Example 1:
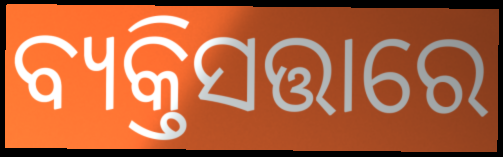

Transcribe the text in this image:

ବ୍ୟକ୍ତିସତ୍ତାରେ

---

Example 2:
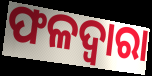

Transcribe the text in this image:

ଫଳଦ୍ୱାରା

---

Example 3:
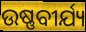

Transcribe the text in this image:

ଉଷ୍ଣବୀର୍ଯ୍ୟ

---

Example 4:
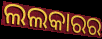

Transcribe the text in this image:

ଲଲକାରର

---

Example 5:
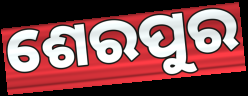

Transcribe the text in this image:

ଶେରପୁର